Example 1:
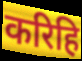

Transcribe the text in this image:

करिहि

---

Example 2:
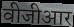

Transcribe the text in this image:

वीजीआर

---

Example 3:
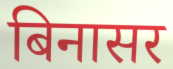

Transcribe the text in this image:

बिनासर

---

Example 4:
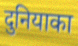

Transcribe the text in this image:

दुनियाका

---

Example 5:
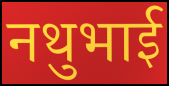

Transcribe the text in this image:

नथुभाई